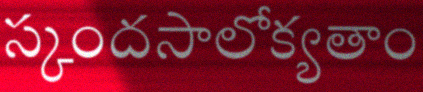
స్కందసాలోక్యతాం